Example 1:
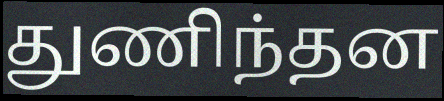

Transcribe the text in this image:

துணிந்தன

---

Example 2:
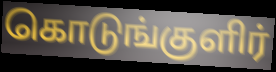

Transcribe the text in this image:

கொடுங்குளிர்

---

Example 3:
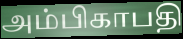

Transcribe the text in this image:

அம்பிகாபதி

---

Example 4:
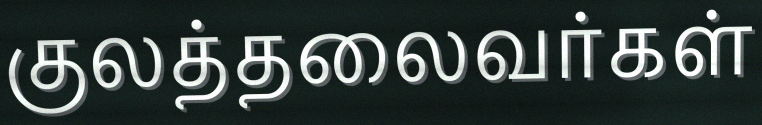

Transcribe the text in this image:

குலத்தலைவர்கள்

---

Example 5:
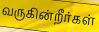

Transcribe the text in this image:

வருகின்றீர்கள்